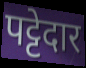
पट्टेदार